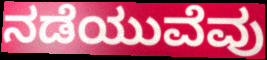
ನಡೆಯುವೆವು